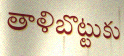
తాళిబొట్టుకు